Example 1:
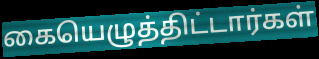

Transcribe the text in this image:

கையெழுத்திட்டார்கள்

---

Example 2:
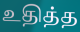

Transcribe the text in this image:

உதித்த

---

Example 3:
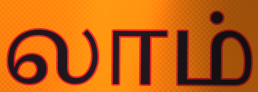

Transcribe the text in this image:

லாம்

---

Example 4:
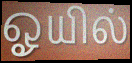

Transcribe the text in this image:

ஓயில்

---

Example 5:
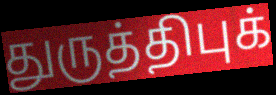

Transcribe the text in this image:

துருத்திபுக்